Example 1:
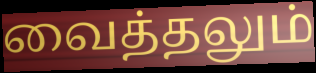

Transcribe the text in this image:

வைத்தலும்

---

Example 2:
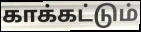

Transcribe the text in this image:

காக்கட்டும்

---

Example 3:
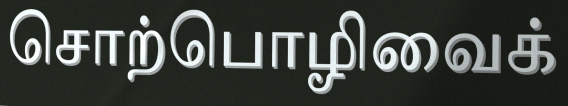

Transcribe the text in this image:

சொற்பொழிவைக்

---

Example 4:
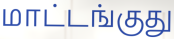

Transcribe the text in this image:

மாட்டங்குது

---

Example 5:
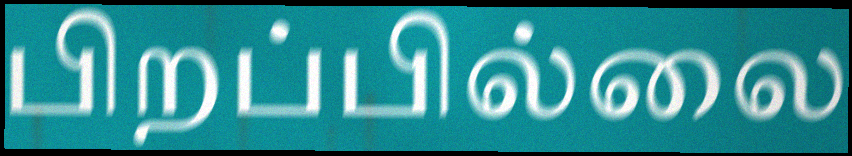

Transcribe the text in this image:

பிறப்பில்லை